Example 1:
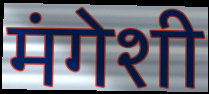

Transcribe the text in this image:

मंगेशी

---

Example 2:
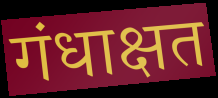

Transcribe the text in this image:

गंधाक्षत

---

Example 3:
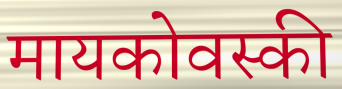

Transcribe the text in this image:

मायकोवस्की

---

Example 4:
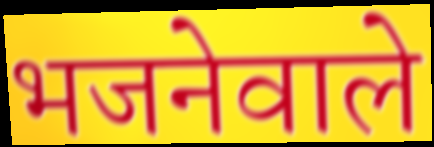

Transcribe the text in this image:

भजनेवाले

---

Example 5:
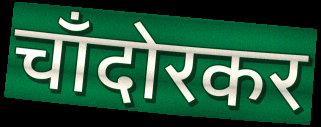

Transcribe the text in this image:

चाँदोरकर